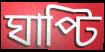
ঘাপ্টি